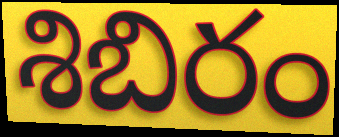
శిబిరం